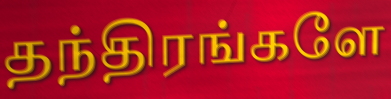
தந்திரங்களே